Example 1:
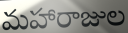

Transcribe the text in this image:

మహారాజుల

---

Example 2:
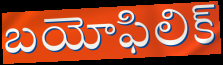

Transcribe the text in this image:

బయోఫిలిక్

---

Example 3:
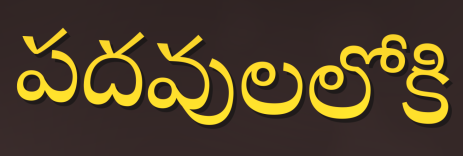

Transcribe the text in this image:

పదవులలోకి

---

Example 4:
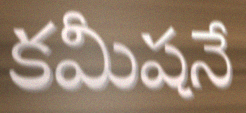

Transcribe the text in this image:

కమీషనే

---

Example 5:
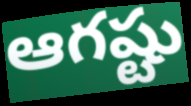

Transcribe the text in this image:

ఆగష్టు